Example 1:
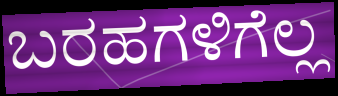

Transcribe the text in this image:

ಬರಹಗಳಿಗೆಲ್ಲ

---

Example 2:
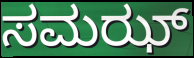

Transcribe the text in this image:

ಸಮಝ್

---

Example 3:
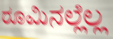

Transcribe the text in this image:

ರೂಮಿನಲ್ಲೆಲ್ಲ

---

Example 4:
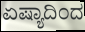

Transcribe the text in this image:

ಏಷ್ಯಾದಿಂದ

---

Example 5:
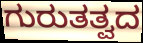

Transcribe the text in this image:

ಗುರುತತ್ವದ